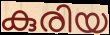
കുരിയ